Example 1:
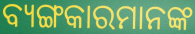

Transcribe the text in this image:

ବ୍ୟଙ୍ଗକାରମାନଙ୍କ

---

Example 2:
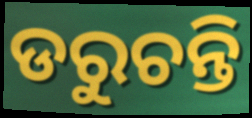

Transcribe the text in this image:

ଡରୁଚନ୍ତି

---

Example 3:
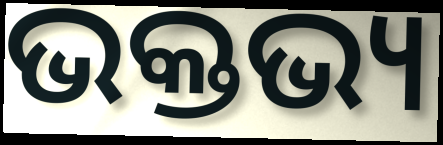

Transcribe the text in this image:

ଭକ୍ତଭ୍ୟ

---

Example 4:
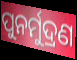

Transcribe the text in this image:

ପୁନର୍ମୁଦ୍ରଣ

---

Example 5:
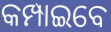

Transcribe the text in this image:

କମ୍ପାଇବେ